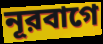
নূরবাগে